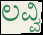
ಲವ್ವಿ